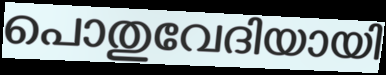
പൊതുവേദിയായി